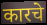
कारचे